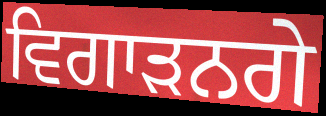
ਵਿਗਾੜਨਗੇ